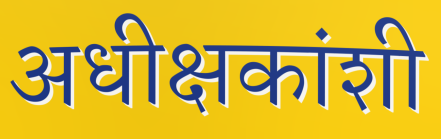
अधीक्षकांशी